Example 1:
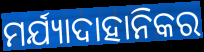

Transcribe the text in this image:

ମର୍ଯ୍ୟାଦାହାନିକର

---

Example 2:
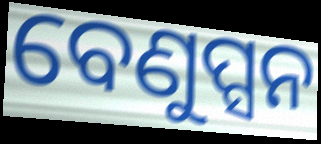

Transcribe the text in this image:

ବେଣୁପ୍ସନ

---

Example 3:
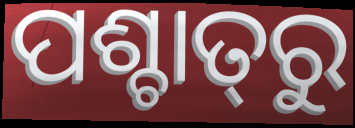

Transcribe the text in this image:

ପଶ୍ଚାତ୍‌ରୁ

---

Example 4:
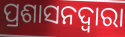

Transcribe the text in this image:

ପ୍ରଶାସନଦ୍ୱାରା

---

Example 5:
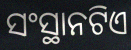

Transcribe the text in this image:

ସଂସ୍ଥାନଟିଏ